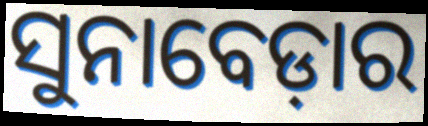
ସୁନାବେଡ଼ାର